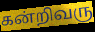
கன்றிவரு